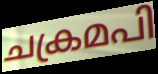
ചക്രമപി